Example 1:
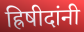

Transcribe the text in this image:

ह्रिषीदांनी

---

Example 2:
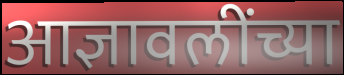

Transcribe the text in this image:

आज्ञावलींच्या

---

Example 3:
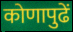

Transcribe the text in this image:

कोणापुढें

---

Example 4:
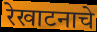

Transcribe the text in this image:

रेखाटनाचे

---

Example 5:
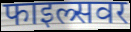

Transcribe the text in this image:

फाइल्सवर